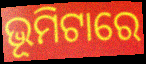
ଭୂମିଟାରେ